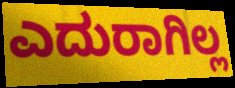
ಎದುರಾಗಿಲ್ಲ